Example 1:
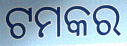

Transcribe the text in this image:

ଟମକର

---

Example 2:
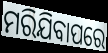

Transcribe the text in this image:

ମରିଯିବାପରେ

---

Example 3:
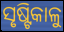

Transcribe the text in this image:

ସୃଷ୍ଟିକାଳୁ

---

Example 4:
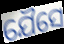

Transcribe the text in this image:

ଯୈସେ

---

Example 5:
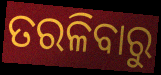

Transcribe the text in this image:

ତରଳିବାରୁ